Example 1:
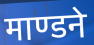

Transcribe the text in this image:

माण्डने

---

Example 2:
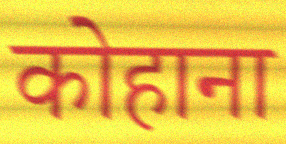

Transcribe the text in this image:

कोहाना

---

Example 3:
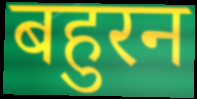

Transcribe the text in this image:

बहुरन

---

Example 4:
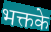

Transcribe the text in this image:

भक्तके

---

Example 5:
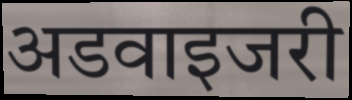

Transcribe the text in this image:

अडवाइजरी